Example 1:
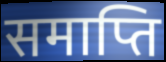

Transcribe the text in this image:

समाप्ति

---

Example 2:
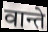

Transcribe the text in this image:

वान्ते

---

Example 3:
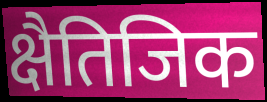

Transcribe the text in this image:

क्षैतिजिक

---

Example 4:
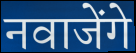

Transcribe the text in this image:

नवाजेंगे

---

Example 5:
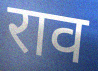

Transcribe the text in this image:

राव